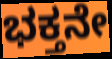
ಭಕ್ತನೇ